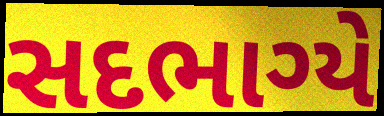
સદભાગ્યે